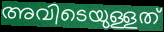
അവിടെയുള്ളത്